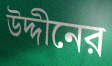
উদ্দীনের